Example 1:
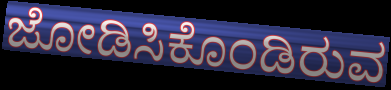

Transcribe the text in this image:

ಜೋಡಿಸಿಕೊಂಡಿರುವ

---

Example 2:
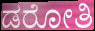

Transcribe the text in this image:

ಡರೋತಿ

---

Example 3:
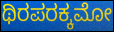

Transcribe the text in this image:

ಥಿರಪರಕ್ಕಮೋ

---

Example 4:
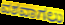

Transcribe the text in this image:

ವಶವಾಗಲು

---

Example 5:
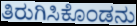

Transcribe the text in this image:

ತಿರುಗಿಸಿಕೊಂಡನು